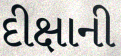
દીક્ષાની